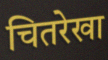
चितरेखा